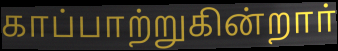
காப்பாற்றுகின்றார்